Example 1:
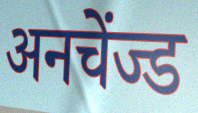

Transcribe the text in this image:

अनचेंज्ड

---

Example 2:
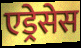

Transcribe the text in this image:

एड्रेसेस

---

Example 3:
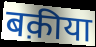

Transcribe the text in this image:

बक़ीया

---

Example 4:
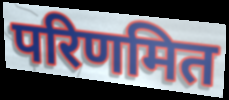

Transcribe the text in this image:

परिणमित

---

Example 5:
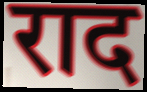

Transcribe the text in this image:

राद